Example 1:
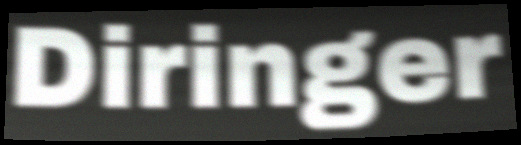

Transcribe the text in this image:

Diringer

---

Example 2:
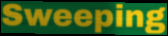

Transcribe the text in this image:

Sweeping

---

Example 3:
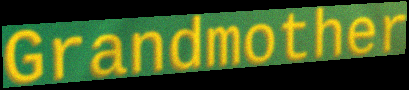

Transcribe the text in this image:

Grandmother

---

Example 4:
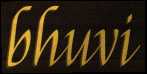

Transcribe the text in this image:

bhuvi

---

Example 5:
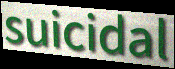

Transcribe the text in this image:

suicidal